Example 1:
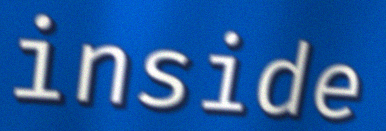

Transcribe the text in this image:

inside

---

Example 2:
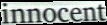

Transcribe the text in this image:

innocent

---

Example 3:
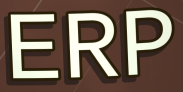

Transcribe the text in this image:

ERP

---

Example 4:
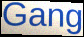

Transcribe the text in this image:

Gang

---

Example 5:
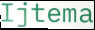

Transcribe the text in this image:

Ijtema